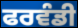
ਫਰਵੰਡੀ